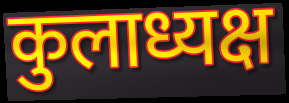
कुलाध्यक्ष